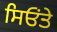
ਸਿਓਂਤੇ